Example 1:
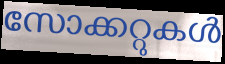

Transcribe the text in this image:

സോക്കറ്റുകൾ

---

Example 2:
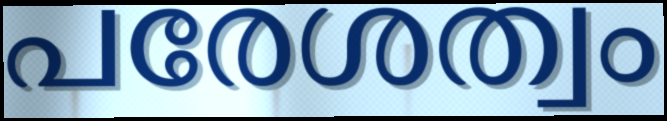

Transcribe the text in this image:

പരേശത്വം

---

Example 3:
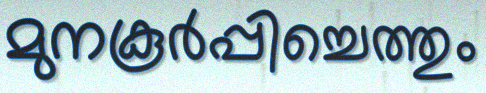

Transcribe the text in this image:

മുനകൂർപ്പിച്ചെത്തും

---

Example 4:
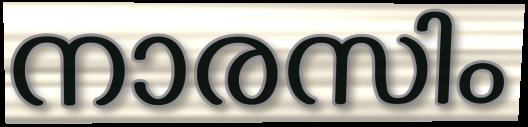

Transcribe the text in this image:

നാരസിം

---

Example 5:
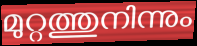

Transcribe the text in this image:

മുറ്റത്തുനിന്നും